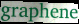
graphene